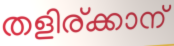
തളിര്ക്കാന്